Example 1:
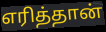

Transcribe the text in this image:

எரித்தான்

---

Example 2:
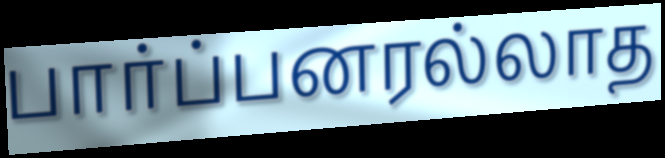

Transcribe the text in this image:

பார்ப்பனரல்லாத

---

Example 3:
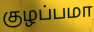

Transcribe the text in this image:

குழப்பமா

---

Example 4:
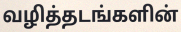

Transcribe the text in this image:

வழித்தடங்களின்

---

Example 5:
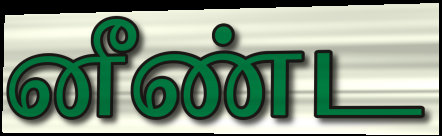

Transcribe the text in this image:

னீண்ட